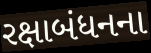
રક્ષાબંધનના